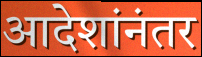
आदेशांनंतर